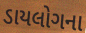
ડાયલોગના